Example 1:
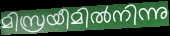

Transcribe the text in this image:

മിസ്രയീമിൽനിന്നു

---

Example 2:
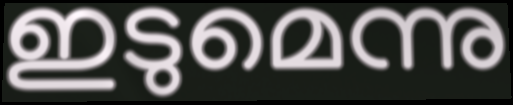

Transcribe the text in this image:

ഇടുമെന്നു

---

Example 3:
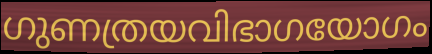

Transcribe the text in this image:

ഗുണത്രയവിഭാഗയോഗം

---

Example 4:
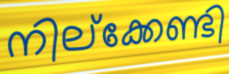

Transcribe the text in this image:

നില്ക്കേണ്ടി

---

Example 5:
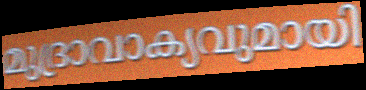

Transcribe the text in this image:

മുദ്രാവാക്യവുമായി